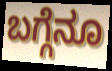
ಬಗ್ಗೆನೂ